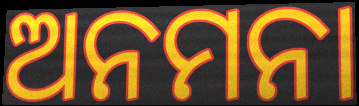
ଅନମନା